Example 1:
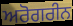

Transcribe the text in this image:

ਅਰੋਗਰੀਨ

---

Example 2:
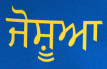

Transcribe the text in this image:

ਜੋਸ਼ੂਆ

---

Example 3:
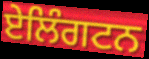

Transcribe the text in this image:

ਏਲਿੰਗਟਨ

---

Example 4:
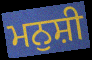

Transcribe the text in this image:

ਮਨੁਸ਼ੀ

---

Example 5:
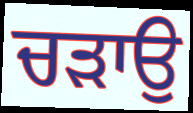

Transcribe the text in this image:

ਚੜਾਉ